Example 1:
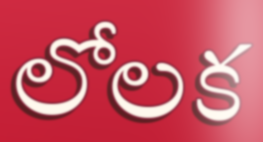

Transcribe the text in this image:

లోలక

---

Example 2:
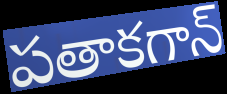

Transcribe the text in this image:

పతాకగాన్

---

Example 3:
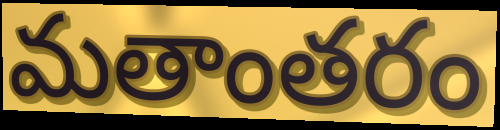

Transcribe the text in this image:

మతాంతరం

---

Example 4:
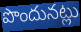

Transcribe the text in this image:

పొందునట్లు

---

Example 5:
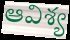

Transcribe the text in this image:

ఆవిశ్య